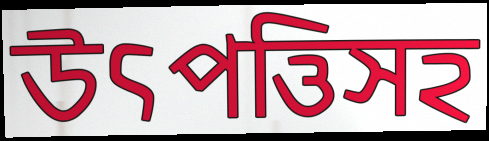
উৎপত্তিসহ